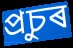
প্ৰচুৰ